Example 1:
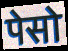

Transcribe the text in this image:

पेसो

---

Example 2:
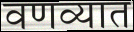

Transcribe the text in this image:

वणव्यात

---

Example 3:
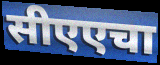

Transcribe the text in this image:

सीएएचा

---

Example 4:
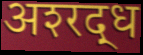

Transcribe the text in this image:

अश्रद्ध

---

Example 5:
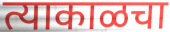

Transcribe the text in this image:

त्याकाळचा